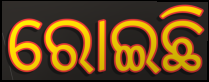
ରୋଇଛି